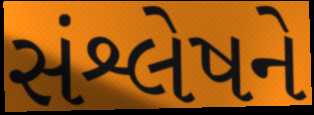
સંશ્લેષને